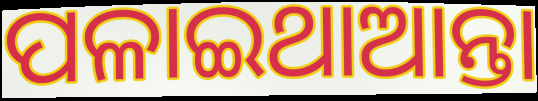
ପଳାଇଥାଆନ୍ତା